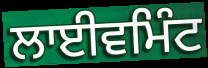
ਲਾਈਵਮਿੰਟ